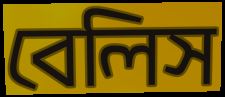
বেলিস